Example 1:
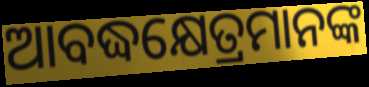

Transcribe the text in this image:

ଆବଦ୍ଧକ୍ଷେତ୍ରମାନଙ୍କ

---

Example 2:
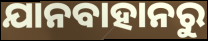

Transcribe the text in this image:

ଯାନବାହାନରୁ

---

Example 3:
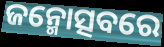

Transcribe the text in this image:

ଜନ୍ମୋତ୍ସବରେ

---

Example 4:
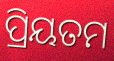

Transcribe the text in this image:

ପ୍ରିୟତମ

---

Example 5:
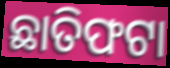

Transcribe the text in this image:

ଛାତିଫଟା